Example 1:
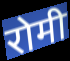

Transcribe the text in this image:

रोमी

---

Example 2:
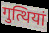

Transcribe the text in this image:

गुत्थियां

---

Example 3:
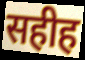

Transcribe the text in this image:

सहीह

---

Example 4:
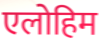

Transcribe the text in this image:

एलोहिम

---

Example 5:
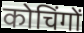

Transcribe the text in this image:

कोचिंगों